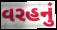
વરહનું